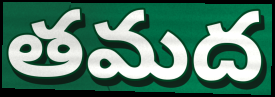
తమద